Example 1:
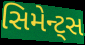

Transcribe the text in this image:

સિમેન્ટ્સ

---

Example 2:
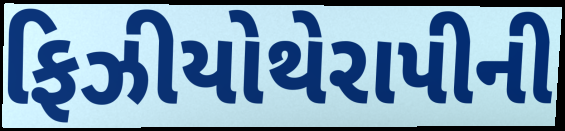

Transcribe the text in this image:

ફિઝીયોથેરાપીની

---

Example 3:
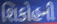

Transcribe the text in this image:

શિકોહની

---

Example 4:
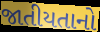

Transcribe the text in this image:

જાતીયતાનો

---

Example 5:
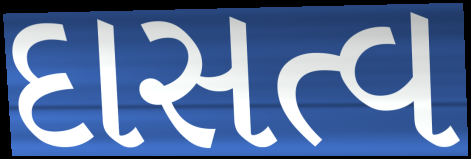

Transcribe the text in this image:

દાસત્વ